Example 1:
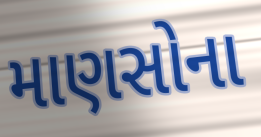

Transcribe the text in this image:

માણસોના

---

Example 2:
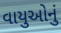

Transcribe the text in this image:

વાયુઓનું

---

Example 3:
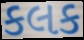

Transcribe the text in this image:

કલક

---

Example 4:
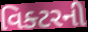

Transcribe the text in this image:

વિક્ટરની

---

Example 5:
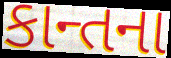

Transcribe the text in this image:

કાન્તના